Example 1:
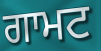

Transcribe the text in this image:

ਗਾਮਟ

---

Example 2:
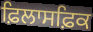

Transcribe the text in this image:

ਫ਼ਿਲਾਸਫ਼ਿਕ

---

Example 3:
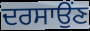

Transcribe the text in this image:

ਦਰਸਾਉਂਣ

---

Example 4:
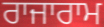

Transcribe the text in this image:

ਰਾਜਾਰਾਮ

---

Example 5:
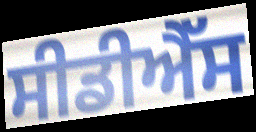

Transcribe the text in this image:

ਸੀਡੀਐੱਸ